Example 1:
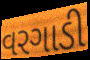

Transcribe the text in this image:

વરગાડી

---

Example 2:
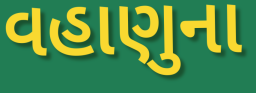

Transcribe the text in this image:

વહાણુના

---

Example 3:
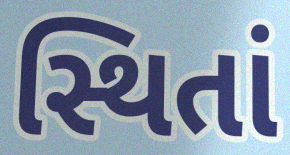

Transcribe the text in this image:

સ્થિતાં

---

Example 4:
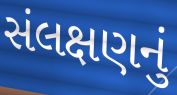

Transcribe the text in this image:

સંલક્ષણનું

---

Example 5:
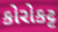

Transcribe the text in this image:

કોરોકટ્ટ